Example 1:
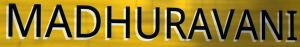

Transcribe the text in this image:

MADHURAVANI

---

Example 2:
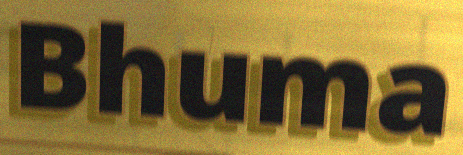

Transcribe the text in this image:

Bhuma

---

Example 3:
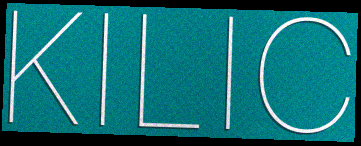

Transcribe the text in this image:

KILIC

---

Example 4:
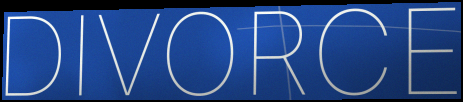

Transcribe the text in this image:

DIVORCE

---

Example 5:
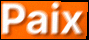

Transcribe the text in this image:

Paix